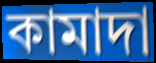
কামাদা